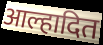
आल्हादित